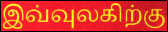
இவ்வுலகிற்கு